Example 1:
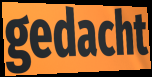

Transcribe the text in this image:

gedacht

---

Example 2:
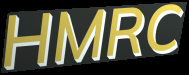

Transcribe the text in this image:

HMRC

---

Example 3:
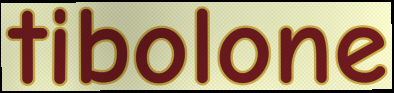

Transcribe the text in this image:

tibolone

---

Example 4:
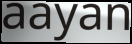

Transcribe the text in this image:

aayan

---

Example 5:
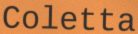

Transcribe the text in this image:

Coletta